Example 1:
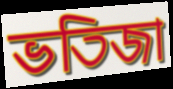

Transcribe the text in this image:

ভতিজা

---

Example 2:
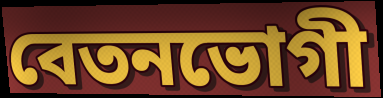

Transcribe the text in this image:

বেতনভোগী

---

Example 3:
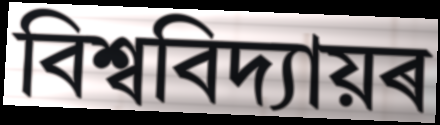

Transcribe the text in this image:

বিশ্ববিদ্যায়ৰ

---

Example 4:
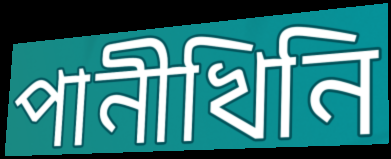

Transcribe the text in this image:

পানীখিনি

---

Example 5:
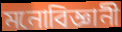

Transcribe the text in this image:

মনোবিজ্ঞানী